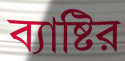
ব্যাষ্টির